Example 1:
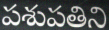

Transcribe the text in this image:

పశుపతిని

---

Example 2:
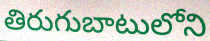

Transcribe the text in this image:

తిరుగుబాటులోని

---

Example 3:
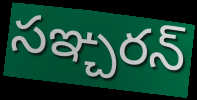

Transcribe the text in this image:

సఞ్చరన్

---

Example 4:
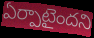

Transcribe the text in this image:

ఏర్పాటైందని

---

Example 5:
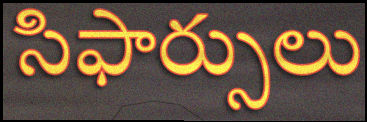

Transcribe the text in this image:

సిఫార్సులు